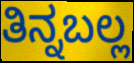
ತಿನ್ನಬಲ್ಲ